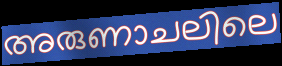
അരുണാചലിലെ